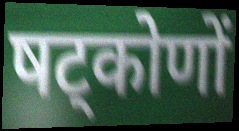
षट्कोणों